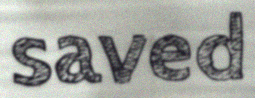
saved